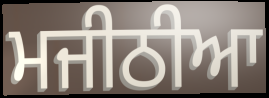
ਮਜੀਠੀਆ